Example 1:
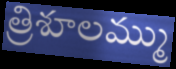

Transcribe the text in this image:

త్రిశూలమ్ము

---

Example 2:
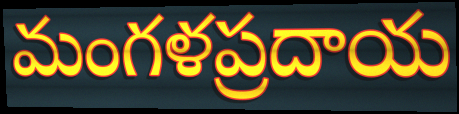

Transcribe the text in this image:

మంగళప్రదాయ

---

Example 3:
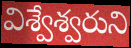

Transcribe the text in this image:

విశ్వేశ్వరుని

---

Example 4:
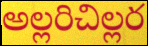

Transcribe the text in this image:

అల్లరిచిల్లర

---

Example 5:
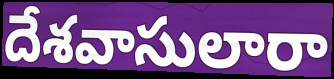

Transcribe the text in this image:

దేశవాసులారా